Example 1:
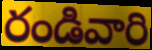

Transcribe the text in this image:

రండివారి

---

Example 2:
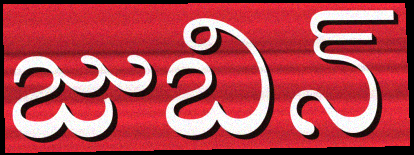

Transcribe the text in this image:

జుబిన్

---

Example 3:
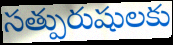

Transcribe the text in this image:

సత్పురుషులకు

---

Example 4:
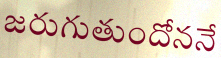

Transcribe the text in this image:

జరుగుతుందోననే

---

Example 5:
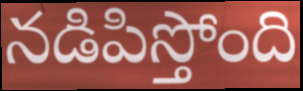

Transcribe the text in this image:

నడిపిస్తోంది